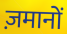
ज़मानों